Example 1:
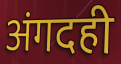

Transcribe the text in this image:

अंगदही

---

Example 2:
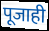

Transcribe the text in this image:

पूजाही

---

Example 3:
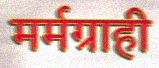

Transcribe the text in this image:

मर्मग्राही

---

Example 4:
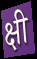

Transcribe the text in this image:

क्षी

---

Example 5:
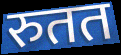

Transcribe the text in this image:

रुतत